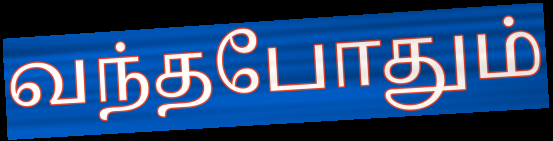
வந்தபோதும்